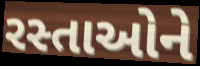
રસ્તાઓને